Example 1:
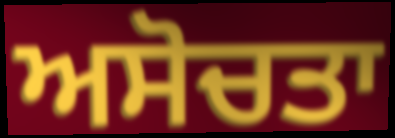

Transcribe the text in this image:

ਅਸੋਚਤਾ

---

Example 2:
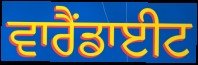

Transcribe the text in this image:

ਵਾਰੈਂਡਾਈਟ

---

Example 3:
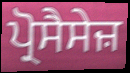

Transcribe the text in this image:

ਪ੍ਰੋਸੈਸੇਜ਼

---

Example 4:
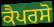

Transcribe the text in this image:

ਕੈਪਰਸੋ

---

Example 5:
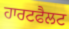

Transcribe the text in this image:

ਹਾਰਟਫੈਲਟ